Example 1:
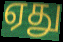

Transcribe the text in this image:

ஏது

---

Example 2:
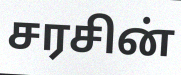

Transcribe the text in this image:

சரசின்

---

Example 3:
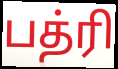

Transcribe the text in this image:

பத்ரி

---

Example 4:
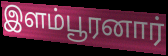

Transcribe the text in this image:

இளம்பூரனார்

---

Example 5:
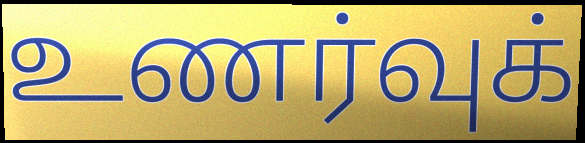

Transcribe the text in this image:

உணர்வுக்